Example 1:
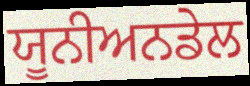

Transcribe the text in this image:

ਯੂਨੀਅਨਡੇਲ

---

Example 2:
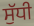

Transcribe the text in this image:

ਸੁੱਧੀ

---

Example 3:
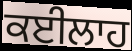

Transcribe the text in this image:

ਕਈਲਾਹ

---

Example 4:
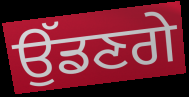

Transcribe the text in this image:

ਉੱਡਣਗੇ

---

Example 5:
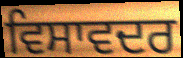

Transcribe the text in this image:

ਵਿਸਾਵਦਰ